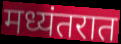
मध्यंतरात